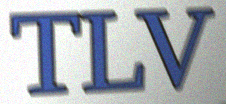
TLV